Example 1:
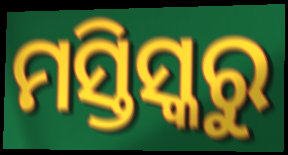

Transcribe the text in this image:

ମସ୍ତିସ୍କରୁ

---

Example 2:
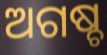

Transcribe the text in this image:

ଅଗଷ୍ଚ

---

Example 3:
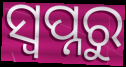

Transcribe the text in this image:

ସ୍ୱପ୍ନରୁ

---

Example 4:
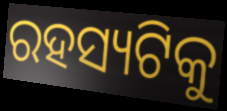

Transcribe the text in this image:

ରହସ୍ୟଟିକୁ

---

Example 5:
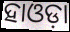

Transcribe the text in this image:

ହାଓଡ଼ା